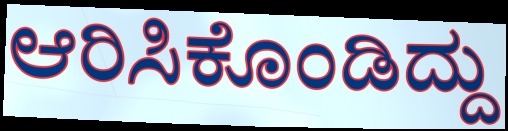
ಆರಿಸಿಕೊಂಡಿದ್ದು